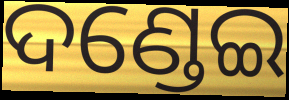
ଦଣ୍ଡେଇ